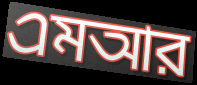
এমআর